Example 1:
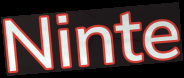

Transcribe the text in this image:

Ninte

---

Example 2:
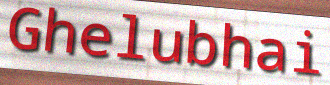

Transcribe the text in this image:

Ghelubhai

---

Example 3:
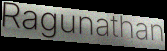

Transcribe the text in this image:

Ragunathan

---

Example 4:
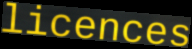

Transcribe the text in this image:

licences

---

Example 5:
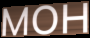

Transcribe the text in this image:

MOH